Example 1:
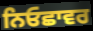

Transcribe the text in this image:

ਨਿਓਛਾਵਰ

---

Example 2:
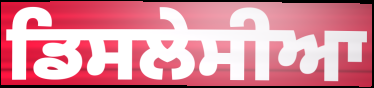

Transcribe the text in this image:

ਡਿਸਲੇਸੀਆ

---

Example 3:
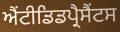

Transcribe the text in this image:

ਐਂਟੀਡਿਡਪ੍ਰੈਸੈਂਟਸ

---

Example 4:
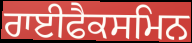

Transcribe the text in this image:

ਰਾਈਫੈਕਸਮਿਨ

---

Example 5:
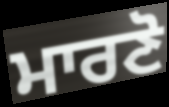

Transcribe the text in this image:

ਮਾਰਣੋ